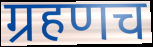
ग्रहणच